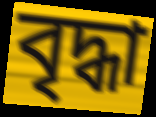
বৃদ্ধা